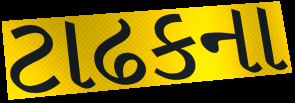
ટાઢકના